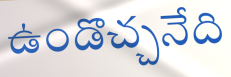
ఉండొచ్చనేది